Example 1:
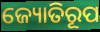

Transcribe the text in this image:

ଜ୍ୟୋତିରୂପ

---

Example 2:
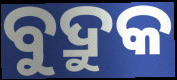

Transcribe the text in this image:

ବୁଦ୍ରୁକ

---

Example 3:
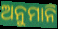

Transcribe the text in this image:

ଅନୁମାନି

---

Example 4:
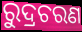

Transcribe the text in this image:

ରୁଦ୍ରଚରଣ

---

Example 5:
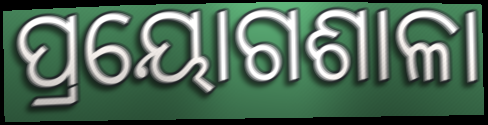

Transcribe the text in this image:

ପ୍ରୟୋଗଶାଳା